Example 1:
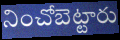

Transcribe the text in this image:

నించోబెట్టారు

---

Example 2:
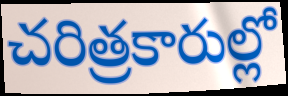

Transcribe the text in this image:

చరిత్రకారుల్లో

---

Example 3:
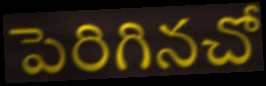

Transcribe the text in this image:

పెరిగినచో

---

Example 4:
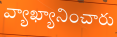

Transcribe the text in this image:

వ్యాఖ్యానించారు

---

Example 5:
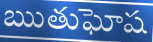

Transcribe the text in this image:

ఋతుఘోష